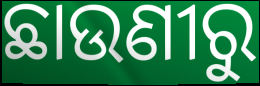
ଛାଉଣୀରୁ